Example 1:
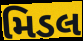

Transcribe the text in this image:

મિડલ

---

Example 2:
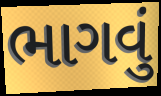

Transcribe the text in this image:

ભાગવું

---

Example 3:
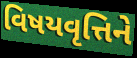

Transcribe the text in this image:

વિષયવૃત્તિને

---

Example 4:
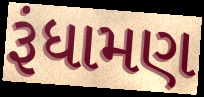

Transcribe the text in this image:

રૂંધામણ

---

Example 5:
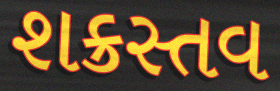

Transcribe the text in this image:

શક્રસ્તવ